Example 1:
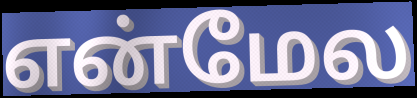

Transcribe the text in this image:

என்மேல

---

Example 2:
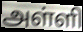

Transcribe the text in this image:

அள்ளி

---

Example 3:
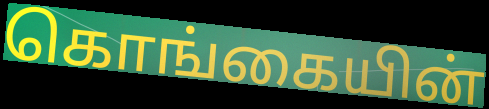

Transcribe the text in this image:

கொங்கையின்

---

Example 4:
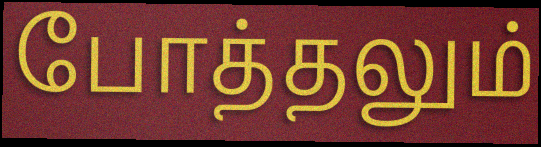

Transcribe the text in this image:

போத்தலும்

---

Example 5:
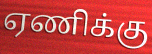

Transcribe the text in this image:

ஏணிக்கு